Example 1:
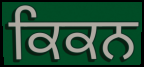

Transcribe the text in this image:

ਕਿਕਨ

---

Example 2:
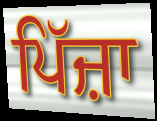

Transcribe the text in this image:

ਪਿੱਜ਼ਾ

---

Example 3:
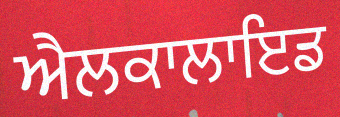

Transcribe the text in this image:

ਐਲਕਾਲਾਇਡ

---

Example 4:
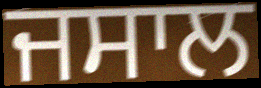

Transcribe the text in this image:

ਜਸਾਲ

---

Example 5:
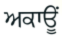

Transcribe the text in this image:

ਅਕਾਊਂ